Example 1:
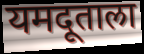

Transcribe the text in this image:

यमदूताला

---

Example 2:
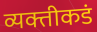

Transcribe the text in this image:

व्यक्तीकडं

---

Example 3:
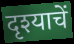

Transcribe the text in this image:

दृश्याचें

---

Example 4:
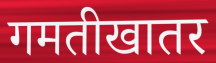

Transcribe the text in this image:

गमतीखातर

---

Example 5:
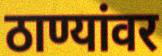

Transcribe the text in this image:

ठाण्यांवर